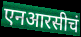
एनआरसीचं